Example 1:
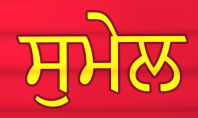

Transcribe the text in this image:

ਸੁਮੇਲ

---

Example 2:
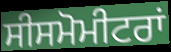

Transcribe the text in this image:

ਸੀਸਮੋਮੀਟਰਾਂ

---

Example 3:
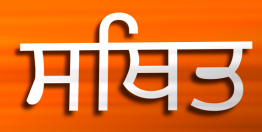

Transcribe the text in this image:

ਸਥਿਤ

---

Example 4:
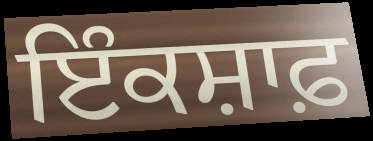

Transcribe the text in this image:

ਇੰਕਸ਼ਾਫ਼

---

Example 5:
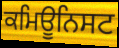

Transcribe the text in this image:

ਕਮਿਊਨਿਸਟ